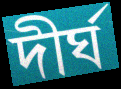
দীর্ঘ